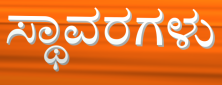
ಸ್ಥಾವರಗಳು